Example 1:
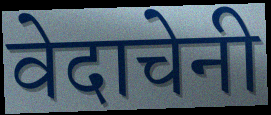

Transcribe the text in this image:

वेदाचेनी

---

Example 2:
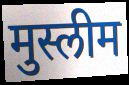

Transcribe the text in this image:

मुस्लीम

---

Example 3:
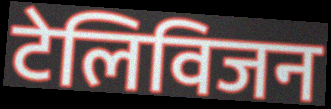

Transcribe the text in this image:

टेलिविजन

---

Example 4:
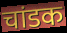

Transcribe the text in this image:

चांडक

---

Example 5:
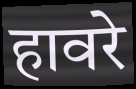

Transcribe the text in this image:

हावरे